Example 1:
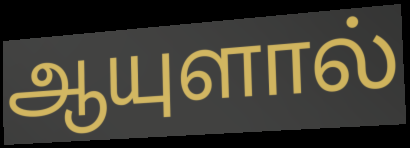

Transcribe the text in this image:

ஆயுளால்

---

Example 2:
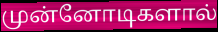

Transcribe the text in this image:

முன்னோடிகளால்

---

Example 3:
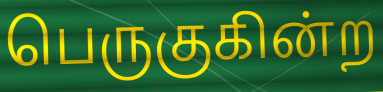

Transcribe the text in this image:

பெருகுகின்ற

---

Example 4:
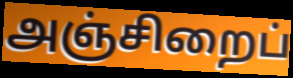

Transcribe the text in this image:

அஞ்சிறைப்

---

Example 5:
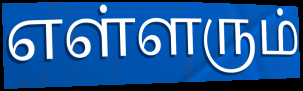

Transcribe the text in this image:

எள்ளரும்